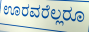
ಊರವರೆಲ್ಲರೂ